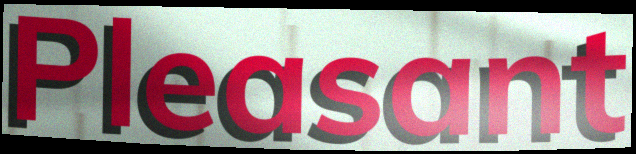
Pleasant